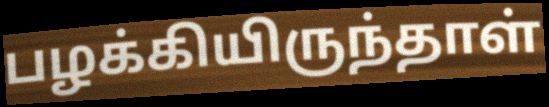
பழக்கியிருந்தாள்